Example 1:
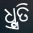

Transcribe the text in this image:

ଧ୍ତ୍ସତି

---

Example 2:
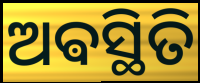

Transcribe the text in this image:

ଅଵସ୍ଥିତି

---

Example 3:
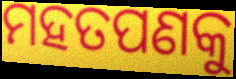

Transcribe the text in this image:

ମହତପଣକୁ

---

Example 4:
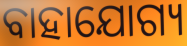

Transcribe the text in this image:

ବାହାଯୋଗ୍ୟ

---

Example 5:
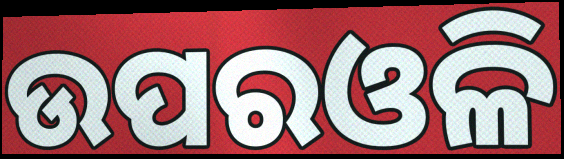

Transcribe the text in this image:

ଉପରଓଳି